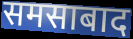
समसाबाद